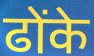
ढोंके